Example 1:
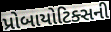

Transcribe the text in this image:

પ્રોબાયોટિક્સની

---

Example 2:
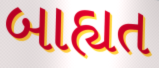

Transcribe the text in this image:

બાહ્યત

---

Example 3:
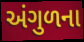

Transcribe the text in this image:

અંગુળના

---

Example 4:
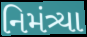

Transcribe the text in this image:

નિમંત્ર્યા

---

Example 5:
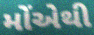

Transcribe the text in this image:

મોંએથી